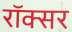
रॉक्सर